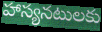
హాస్యనటులకు